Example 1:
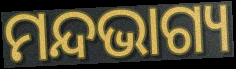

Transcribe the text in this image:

ମନ୍ଦଭାଗ୍ୟ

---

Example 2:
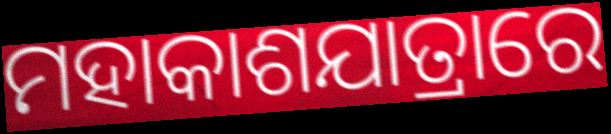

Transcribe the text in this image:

ମହାକାଶଯାତ୍ରାରେ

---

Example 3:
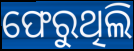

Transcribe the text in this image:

ଫେରୁଥିଲି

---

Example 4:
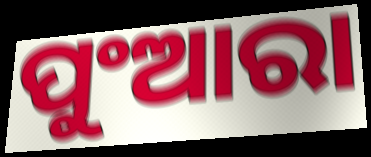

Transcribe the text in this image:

ପୁଂଆରା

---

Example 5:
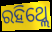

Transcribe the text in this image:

ରହିଥ୍ଲେ